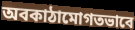
অবকাঠামোগতভাবে